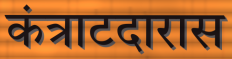
कंत्राटदारास